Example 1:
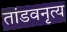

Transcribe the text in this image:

तांडवनृत्य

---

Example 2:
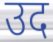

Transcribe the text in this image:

उद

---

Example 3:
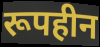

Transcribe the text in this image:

रूपहीन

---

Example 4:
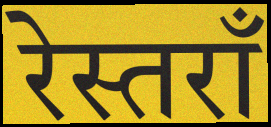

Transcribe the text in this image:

रेस्तराँ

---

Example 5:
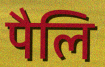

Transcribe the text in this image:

पैलि